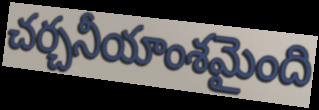
చర్చనీయాంశమైంది